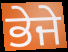
ਭੇਜੇ